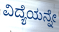
ವಿದ್ಯೆಯನ್ನೇ